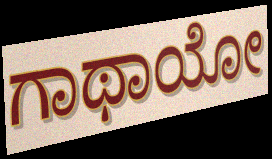
ಗಾಥಾಯೋ